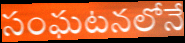
సంఘటనలోనే